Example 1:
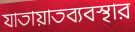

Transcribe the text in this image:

যাতায়াতব্যবস্থার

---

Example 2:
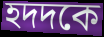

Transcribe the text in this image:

হদদকে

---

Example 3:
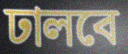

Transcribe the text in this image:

ঢালবে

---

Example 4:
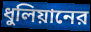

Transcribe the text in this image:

ধুলিয়ানের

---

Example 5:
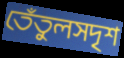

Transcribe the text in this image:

তেঁতুলসদৃশ